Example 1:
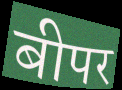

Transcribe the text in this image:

बीपर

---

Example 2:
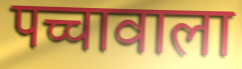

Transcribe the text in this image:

पच्चावाला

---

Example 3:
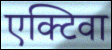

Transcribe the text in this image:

एक्टिवा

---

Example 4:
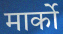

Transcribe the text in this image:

मार्को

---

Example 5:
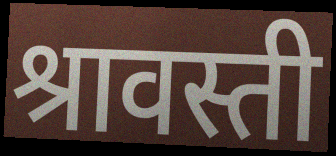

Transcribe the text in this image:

श्रावस्ती